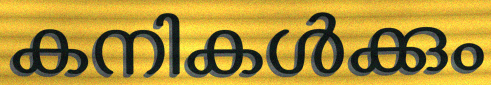
കനികൾക്കും